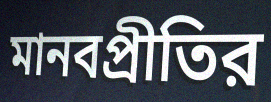
মানবপ্রীতির